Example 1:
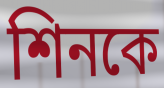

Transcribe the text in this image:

শিনকে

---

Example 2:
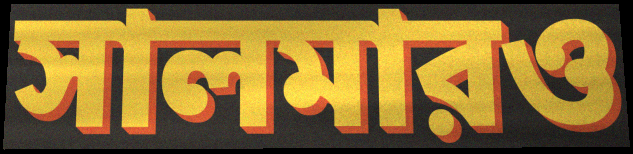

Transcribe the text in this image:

সালমারও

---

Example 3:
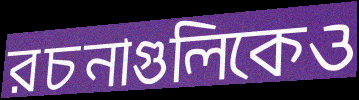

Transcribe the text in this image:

রচনাগুলিকেও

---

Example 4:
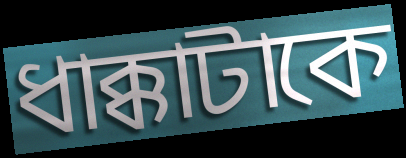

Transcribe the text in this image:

ধাক্কাটাকে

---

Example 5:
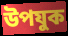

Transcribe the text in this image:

উপযুক